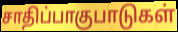
சாதிப்பாகுபாடுகள்